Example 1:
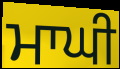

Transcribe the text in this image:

ਮਾਘੀ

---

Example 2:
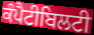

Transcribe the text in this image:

ਕੰਪੈਟੀਬਿਲਟੀ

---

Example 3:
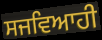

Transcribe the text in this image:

ਸਜਵਿਆਹੀ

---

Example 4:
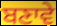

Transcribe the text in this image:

ਬਣਾਵੇ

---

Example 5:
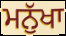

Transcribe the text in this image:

ਮਨੁੱਖਾ